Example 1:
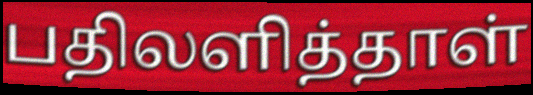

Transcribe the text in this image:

பதிலளித்தாள்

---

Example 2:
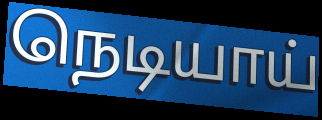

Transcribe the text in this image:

நெடியாய்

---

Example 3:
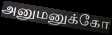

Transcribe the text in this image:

அனுமனுக்கோ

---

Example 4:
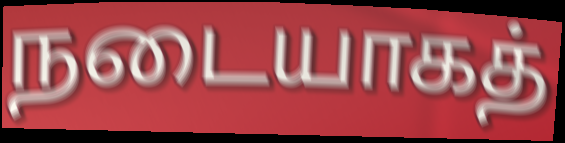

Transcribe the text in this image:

நடையாகத்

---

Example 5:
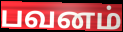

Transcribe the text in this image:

பவனம்